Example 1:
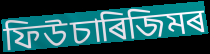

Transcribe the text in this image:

ফিউচাৰিজিমৰ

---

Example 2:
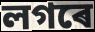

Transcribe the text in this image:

লগৰে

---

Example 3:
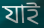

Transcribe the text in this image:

যাই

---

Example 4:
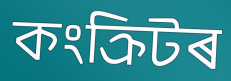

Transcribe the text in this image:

কংক্ৰিটৰ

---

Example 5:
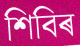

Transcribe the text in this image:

শিবিৰ